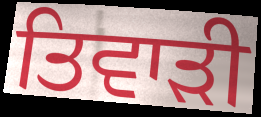
ਤਿਵਾੜੀ